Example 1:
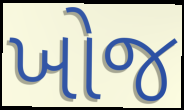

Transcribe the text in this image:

ખોજ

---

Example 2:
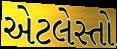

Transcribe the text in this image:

એટલેસ્તો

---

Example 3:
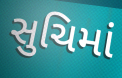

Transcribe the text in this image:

સુચિમાં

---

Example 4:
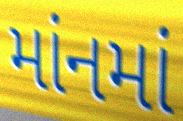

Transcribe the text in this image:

માંનમાં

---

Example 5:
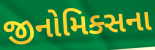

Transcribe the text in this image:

જીનોમિક્સના